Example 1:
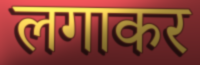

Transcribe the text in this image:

लगाकर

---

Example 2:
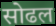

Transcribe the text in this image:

सोढल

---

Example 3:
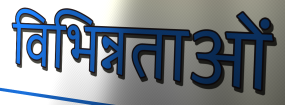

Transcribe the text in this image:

विभिन्नताओं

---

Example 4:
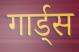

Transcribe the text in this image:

गार्ड्स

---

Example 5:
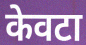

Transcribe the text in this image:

केवटा